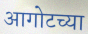
आगोटच्या